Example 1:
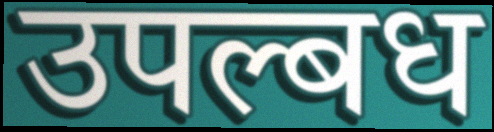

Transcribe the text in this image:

उपल्‍बध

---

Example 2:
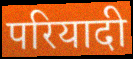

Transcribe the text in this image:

परियादी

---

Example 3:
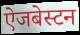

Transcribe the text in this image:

ऐजबेस्टन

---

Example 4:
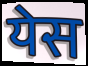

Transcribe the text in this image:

येस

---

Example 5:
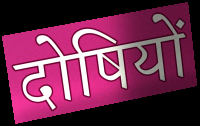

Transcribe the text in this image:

दोषियों